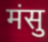
मंसु